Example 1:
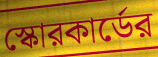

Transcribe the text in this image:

স্কোরকার্ডের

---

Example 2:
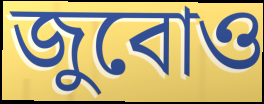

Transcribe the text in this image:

জুবোও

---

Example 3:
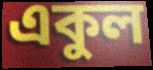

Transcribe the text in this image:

একুল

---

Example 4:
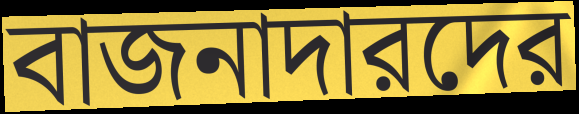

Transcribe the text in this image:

বাজনাদারদের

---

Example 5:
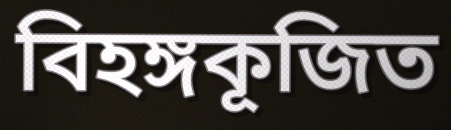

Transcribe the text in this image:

বিহঙ্গকূজিত